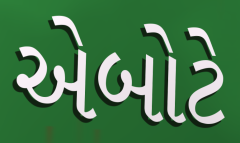
એબોટે